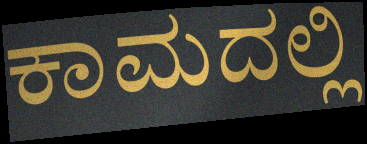
ಕಾಮದಲ್ಲಿ